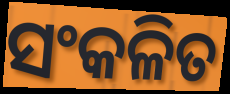
ସଂକଳିତ